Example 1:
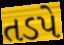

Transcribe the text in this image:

તડપે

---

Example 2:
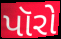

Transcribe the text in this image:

પૉરો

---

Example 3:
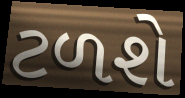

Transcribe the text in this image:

ટળશે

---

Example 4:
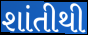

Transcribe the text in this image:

શાંતીથી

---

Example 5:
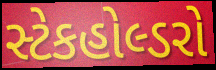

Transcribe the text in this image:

સ્ટેકહોલ્ડરો